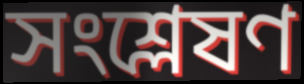
সংশ্লেষণ